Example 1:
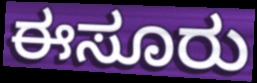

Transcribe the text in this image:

ಈಸೂರು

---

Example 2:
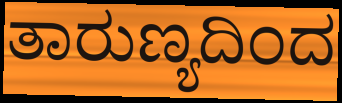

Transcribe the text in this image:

ತಾರುಣ್ಯದಿಂದ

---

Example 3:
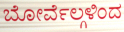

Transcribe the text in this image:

ಬೋರ್ವೆಲ್ಗಳಿಂದ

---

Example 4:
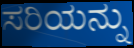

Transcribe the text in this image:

ಸರಿಯನ್ನು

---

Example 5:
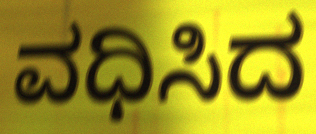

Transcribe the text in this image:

ವಧಿಸಿದ